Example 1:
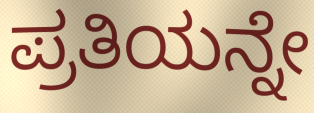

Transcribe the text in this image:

ಪ್ರತಿಯನ್ನೇ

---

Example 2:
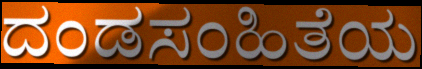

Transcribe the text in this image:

ದಂಡಸಂಹಿತೆಯ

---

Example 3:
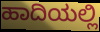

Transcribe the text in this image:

ಹಾದಿಯಲ್ಲಿ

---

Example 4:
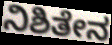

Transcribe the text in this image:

ನಿಶಿತೇನ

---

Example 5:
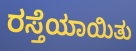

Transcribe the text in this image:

ರಸ್ತೆಯಾಯಿತು